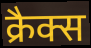
क्रैक्स